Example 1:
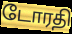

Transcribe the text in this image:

டோரதி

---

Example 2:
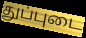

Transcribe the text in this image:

துப்புடை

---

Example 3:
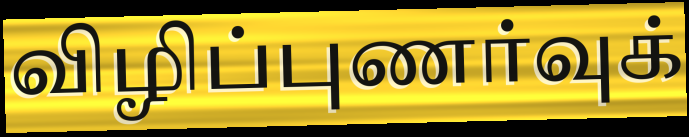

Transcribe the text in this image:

விழிப்புணர்வுக்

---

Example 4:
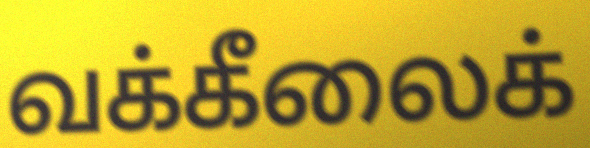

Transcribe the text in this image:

வக்கீலைக்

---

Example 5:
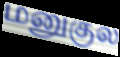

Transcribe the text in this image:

மனுகுல